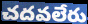
చదవలేరు